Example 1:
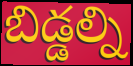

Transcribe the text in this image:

బిడ్డల్ని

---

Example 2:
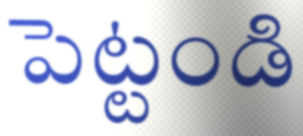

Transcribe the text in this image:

పెట్టండి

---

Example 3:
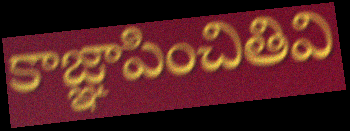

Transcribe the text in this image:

కాజ్ఞాపించితివి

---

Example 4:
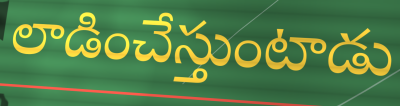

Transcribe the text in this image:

లాడించేస్తుంటాడు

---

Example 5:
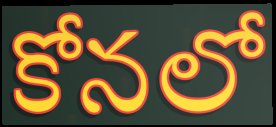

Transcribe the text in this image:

కోనలో